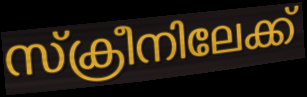
സ്‌ക്രീനിലേക്ക്